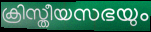
ക്രിസ്തീയസഭയും